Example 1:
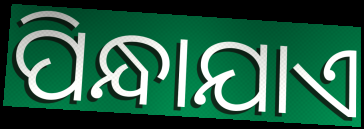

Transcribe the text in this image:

ପିନ୍ଧାଯାଏ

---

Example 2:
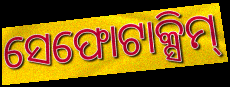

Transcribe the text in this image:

ସେଫୋଟାକ୍ସିମ୍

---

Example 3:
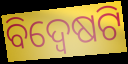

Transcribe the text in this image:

ବିଦ୍ୱେଷଟି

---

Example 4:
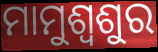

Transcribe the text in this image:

ମାମୁଶ୍ବଶୁର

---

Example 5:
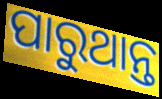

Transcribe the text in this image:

ପାରୁଥାନ୍ତ